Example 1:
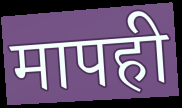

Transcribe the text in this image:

मापही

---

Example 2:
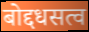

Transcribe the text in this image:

बोद्दधसत्व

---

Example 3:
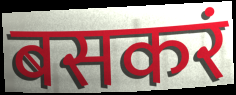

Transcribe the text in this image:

बसकरं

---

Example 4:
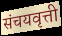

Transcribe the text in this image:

संचयवृत्ती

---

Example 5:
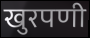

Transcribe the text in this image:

खुरपणी